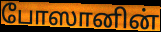
போஸானின்